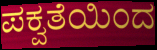
ಪಕ್ವತೆಯಿಂದ